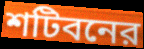
শটিবনের